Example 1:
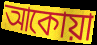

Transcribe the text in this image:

আকোয়া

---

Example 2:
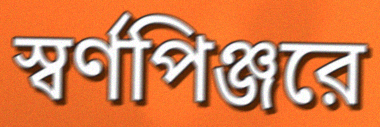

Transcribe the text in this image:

স্বর্ণপিঞ্জরে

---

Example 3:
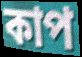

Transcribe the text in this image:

কাপ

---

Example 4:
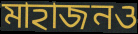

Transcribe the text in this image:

মাহাজনও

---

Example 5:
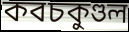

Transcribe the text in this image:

কবচকুণ্ডল